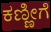
ಕಣ್ಣೀಗೆ